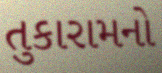
તુકારામનો